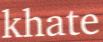
khate